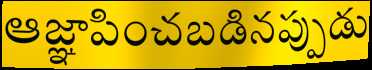
ఆజ్ఞాపించబడినప్పుడు